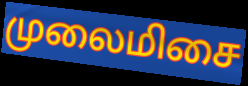
முலைமிசை